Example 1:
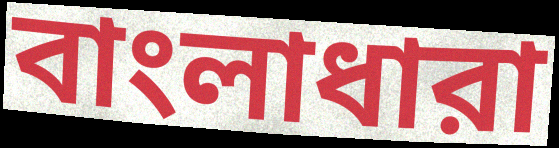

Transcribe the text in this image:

বাংলাধারা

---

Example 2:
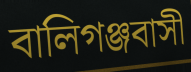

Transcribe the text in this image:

বালিগঞ্জবাসী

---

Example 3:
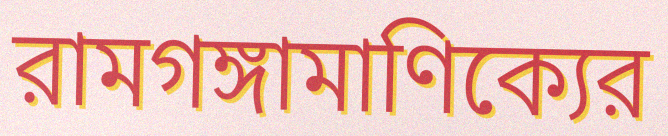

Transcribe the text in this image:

রামগঙ্গামাণিক্যের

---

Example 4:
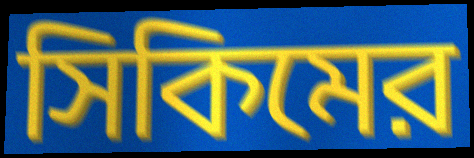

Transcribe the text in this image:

সিকিমের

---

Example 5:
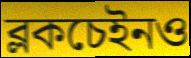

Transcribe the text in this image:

ব্লকচেইনও